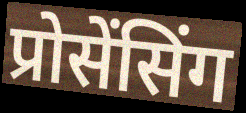
प्रोसेंसिंग